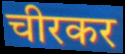
चीरकर